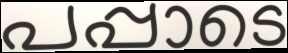
പപ്പാടെ